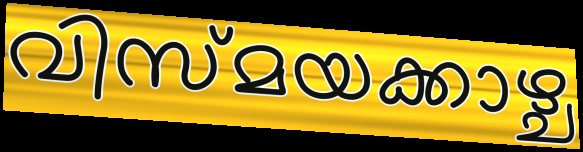
വിസ്മയക്കാഴ്ച